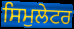
ਸਿਮੁਲੇਟਰ